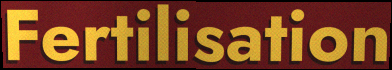
Fertilisation